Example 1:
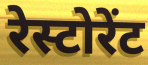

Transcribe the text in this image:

रेस्टोरेंट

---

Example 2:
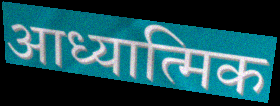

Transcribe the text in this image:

आध्यात्मिक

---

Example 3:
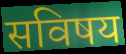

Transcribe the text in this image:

सविषय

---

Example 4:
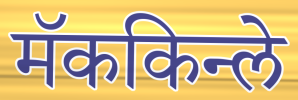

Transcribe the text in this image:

मॅककिन्ले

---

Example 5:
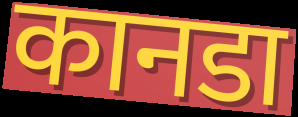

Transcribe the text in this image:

कानडा